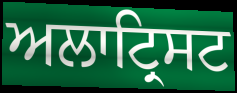
ਅਲਾਟ੍ਰਿਸਟ